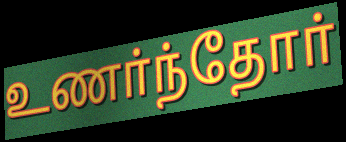
உணர்ந்தோர்